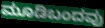
ಮೂಡಿಬಂದವು